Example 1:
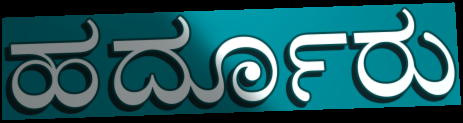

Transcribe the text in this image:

ಹರ್ದೂರು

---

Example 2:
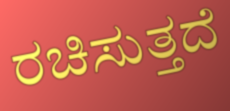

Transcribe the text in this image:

ರಚಿಸುತ್ತದೆ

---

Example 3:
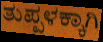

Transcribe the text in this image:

ತುಪ್ಪಳಕ್ಕಾಗಿ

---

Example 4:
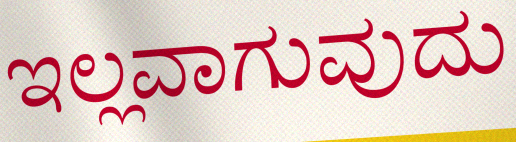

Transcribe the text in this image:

ಇಲ್ಲವಾಗುವುದು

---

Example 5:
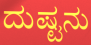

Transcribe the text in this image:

ದುಷ್ಟನು